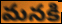
మనకి